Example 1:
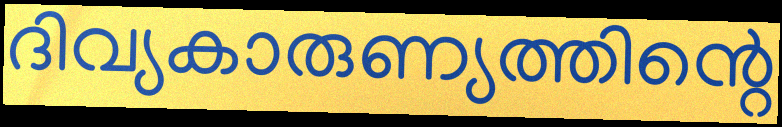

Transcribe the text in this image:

ദിവ്യകാരുണ്യത്തിന്റെ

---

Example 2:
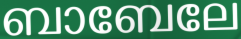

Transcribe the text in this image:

ബാബേലേ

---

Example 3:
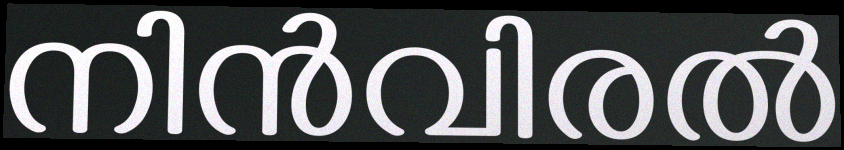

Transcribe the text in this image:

നിൻവിരൽ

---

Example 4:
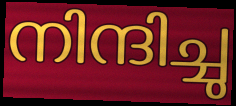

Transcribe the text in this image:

നിന്ദിച്ചു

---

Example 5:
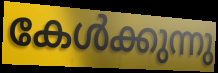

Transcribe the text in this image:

കേൾക്കുന്നു